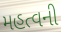
મહત્વની